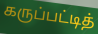
கருப்பட்டித்